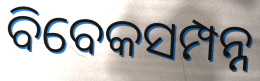
ବିବେକସମ୍ପନ୍ନ